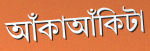
আঁকাআঁকিটা